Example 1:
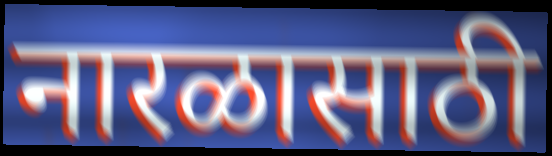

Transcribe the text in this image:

नारळासाठी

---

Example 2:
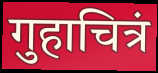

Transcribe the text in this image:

गुहाचित्रं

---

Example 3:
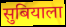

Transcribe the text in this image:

सुबियाला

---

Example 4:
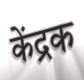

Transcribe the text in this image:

केंद्रक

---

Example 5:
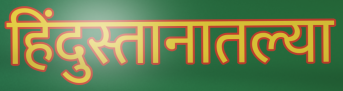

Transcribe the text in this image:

हिंदुस्तानातल्या